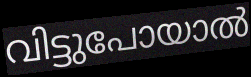
വിട്ടുപോയാൽ